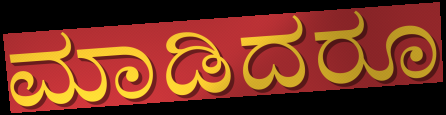
ಮಾಡಿದರೂ